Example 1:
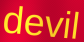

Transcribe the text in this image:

devil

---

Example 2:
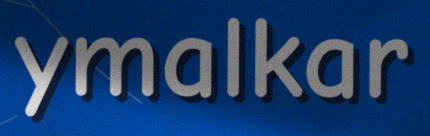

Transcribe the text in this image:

ymalkar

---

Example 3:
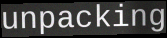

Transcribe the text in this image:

unpacking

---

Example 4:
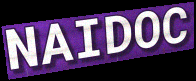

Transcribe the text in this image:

NAIDOC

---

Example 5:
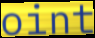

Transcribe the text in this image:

oint